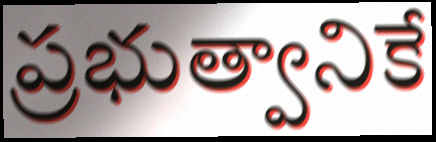
ప్రభుత్వానికే